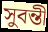
সুবন্তী